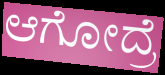
ಆಗೋದ್ರೆ